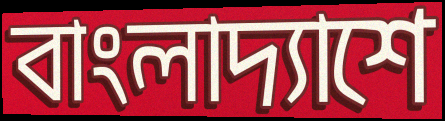
বাংলাদ্যাশে